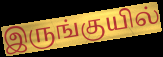
இருங்குயில்